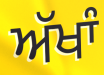
ਅੱਖਾੰ